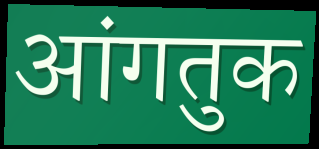
आंगतुक